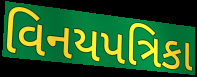
વિનયપત્રિકા